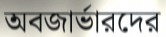
অবজার্ভারদের